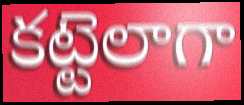
కట్టెలాగా